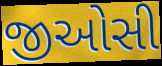
જીઓસી